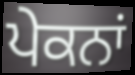
ਪੇਕਨਾਂ